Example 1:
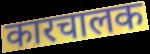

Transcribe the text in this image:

कारचालक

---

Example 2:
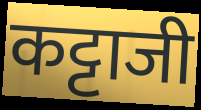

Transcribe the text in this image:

कट्टाजी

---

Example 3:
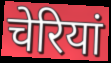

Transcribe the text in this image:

चेरियां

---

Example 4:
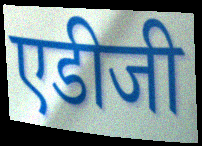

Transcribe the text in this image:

एडीजी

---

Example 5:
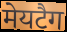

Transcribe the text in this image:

मेयटैग